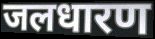
जलधारण